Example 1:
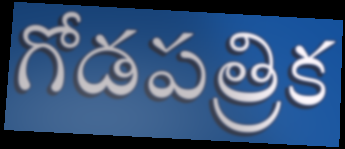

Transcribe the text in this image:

గోడపత్రిక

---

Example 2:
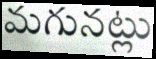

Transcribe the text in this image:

మగునట్లు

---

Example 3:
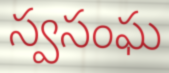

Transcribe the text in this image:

స్వసంఘ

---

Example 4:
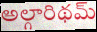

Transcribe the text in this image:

అల్గారిథమ్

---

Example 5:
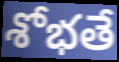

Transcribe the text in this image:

శోభతే